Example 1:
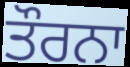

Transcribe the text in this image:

ਤੌਰਨਾ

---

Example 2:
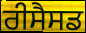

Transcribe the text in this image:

ਰੀਸੈਸਡ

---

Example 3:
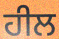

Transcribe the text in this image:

ਹੀਲ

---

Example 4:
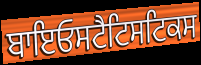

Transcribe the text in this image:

ਬਾਇਓਸਟੈਟਿਸਟਿਕਸ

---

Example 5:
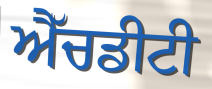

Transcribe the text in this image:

ਐੱਚਡੀਟੀ